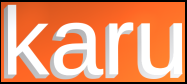
karu